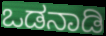
ಒಡನಾಡಿ